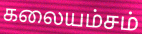
கலையம்சம்